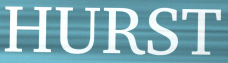
HURST